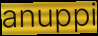
anuppi